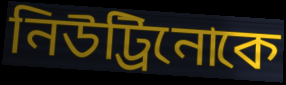
নিউট্রিনোকে